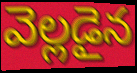
వెల్లడైన